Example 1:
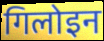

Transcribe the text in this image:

गिलोइन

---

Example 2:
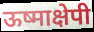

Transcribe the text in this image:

ऊष्माक्षेपी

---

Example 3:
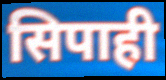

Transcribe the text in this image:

सिपाही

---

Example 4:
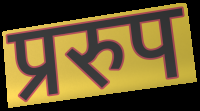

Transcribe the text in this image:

प्ररुप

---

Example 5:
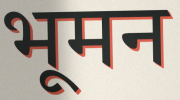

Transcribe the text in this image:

भूमन